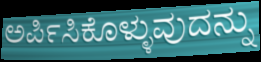
ಅರ್ಪಿಸಿಕೊಳ್ಳುವುದನ್ನು